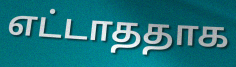
எட்டாததாக